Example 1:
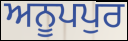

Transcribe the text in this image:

ਅਨੂਪਪੁਰ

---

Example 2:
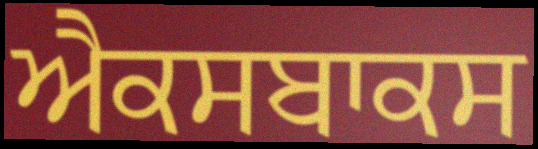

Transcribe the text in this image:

ਐਕਸਬਾਕਸ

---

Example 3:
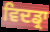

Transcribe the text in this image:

ਵਿਦਡ੍ਰਾ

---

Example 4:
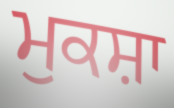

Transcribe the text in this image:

ਮੁਕਸ਼ਾ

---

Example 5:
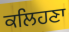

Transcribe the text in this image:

ਕਲਿਹਣਾ